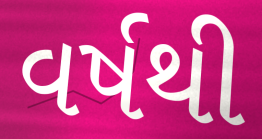
વર્ષથી